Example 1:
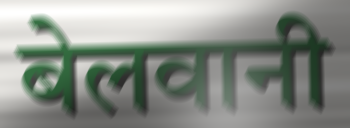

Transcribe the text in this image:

बेलवानी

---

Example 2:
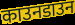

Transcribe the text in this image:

काउनडाउन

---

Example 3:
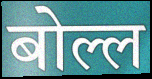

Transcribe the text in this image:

बोल्ल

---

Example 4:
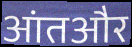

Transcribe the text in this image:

आंतऔर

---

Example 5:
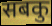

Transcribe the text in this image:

सबकु